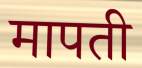
मापती